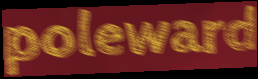
poleward